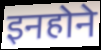
इनहोने